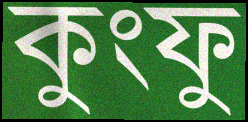
কুংফু